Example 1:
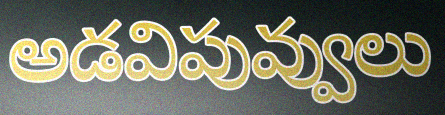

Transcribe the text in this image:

అడవిపువ్వులు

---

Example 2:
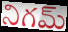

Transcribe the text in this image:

నిగమ్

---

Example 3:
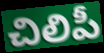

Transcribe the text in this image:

చిలిపీ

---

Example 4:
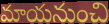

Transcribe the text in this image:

మాయనుంచి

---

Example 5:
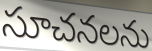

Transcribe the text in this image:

సూచనలను